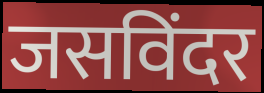
जसविंदर